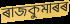
ৰাজকুমাৰৰ